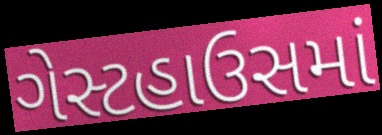
ગેસ્ટહાઉસમાં